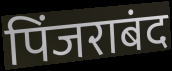
पिंजराबंद